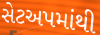
સેટઅપમાંથી